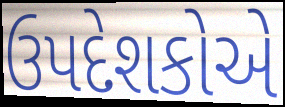
ઉપદેશકોએ